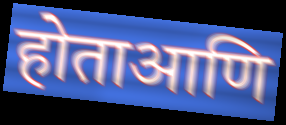
होताआणि